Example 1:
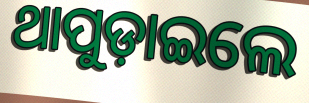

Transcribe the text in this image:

ଥାପୁଡ଼ାଇଲେ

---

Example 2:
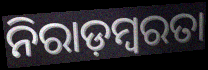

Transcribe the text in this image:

ନିରାଡ଼ମ୍ବରତା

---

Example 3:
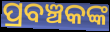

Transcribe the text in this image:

ପ୍ରବଞ୍ଚକଙ୍କ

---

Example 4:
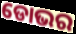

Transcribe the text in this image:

ଡୋଭର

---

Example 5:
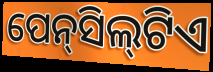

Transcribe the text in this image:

ପେନ୍‍ସିଲ୍‍ଟିଏ